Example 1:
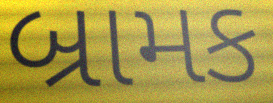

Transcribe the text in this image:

બ્રામક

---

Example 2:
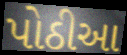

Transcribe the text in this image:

પોઠીઆ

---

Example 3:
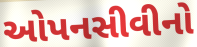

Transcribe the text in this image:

ઓપનસીવીનો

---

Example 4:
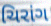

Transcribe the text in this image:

ચિરાંગ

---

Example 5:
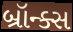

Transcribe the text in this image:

બ્રૉન્ક્સ